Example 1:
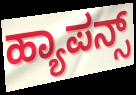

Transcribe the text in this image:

ಹ್ಯಾಪನ್ಸ್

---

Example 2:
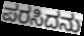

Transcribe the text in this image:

ಪರಸಿದನು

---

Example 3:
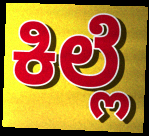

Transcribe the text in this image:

ಕಿಲ್ಲೆ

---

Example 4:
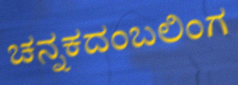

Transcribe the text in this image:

ಚನ್ನಕದಂಬಲಿಂಗ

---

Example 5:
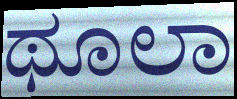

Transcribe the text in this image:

ಥೂಲಾ